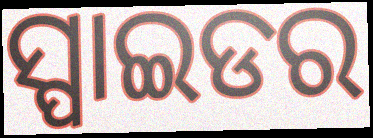
ସ୍ପାଇଡର